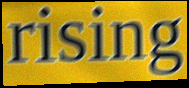
rising